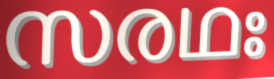
സരഥഃ